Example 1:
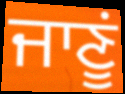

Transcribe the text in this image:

ਜਾਣੂਂ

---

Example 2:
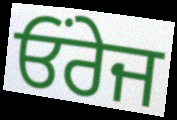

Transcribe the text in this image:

ਓਂਰੇਜ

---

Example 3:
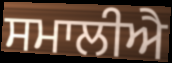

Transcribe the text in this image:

ਸਮਾਲੀਐ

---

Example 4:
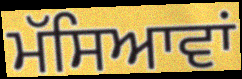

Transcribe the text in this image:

ਮੱਸਿਆਵਾਂ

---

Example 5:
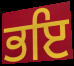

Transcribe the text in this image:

ਭਇ